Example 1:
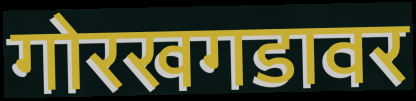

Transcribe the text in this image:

गोरखगडावर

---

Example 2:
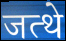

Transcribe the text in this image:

जत्थे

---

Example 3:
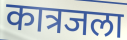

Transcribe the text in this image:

कात्रजला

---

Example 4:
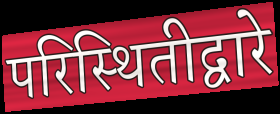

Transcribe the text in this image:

परिस्थितीद्वारे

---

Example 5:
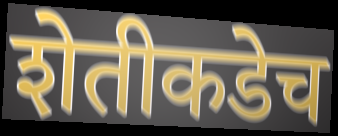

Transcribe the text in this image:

शेतीकडेच